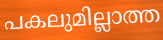
പകലുമില്ലാത്ത